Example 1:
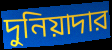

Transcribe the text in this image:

দুনিয়াদার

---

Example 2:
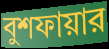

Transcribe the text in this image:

বুশফায়ার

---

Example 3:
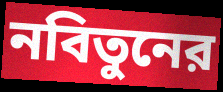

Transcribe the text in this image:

নবিতুনের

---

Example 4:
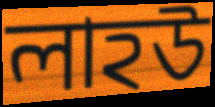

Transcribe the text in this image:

লাহউ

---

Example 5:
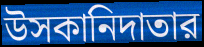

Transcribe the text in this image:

উসকানিদাতার